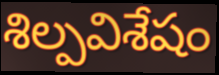
శిల్పవిశేషం